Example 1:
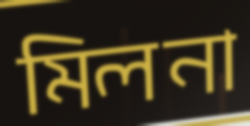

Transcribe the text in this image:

মিলনা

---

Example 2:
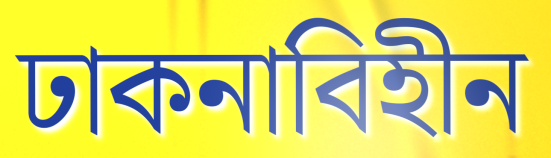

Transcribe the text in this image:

ঢাকনাবিহীন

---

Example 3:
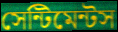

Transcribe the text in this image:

সেন্টিমেন্টস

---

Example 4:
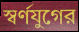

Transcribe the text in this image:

স্বর্ণযুগের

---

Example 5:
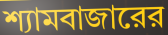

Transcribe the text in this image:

শ্যামবাজারের